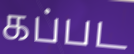
கப்பட